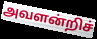
அவளன்றிச்